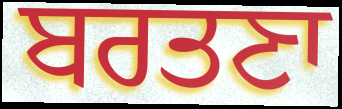
ਬਰਤਣਾ